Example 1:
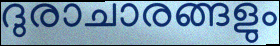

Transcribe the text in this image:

ദുരാചാരങ്ങളും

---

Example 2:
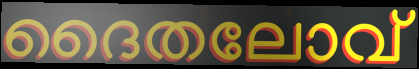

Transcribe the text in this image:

ദൈതലോവ്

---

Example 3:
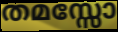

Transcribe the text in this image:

തമസ്സോ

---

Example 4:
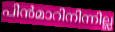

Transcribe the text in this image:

പിൻമാറിനിന്നില്ല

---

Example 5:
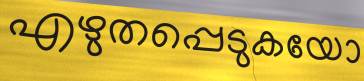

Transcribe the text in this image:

എഴുതപ്പെടുകയോ